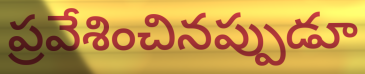
ప్రవేశించినప్పుడూ